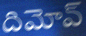
దిమోవ్